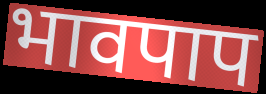
भावपाप